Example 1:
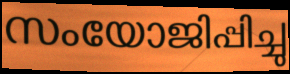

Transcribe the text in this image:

സംയോജിപ്പിച്ചു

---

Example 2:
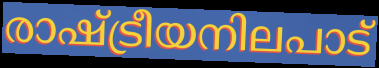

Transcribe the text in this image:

രാഷ്ട്രീയനിലപാട്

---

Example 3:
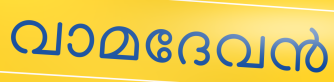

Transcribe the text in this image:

വാമദേവൻ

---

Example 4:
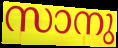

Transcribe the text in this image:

സാനു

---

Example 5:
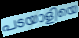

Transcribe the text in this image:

പടയാളിയെ